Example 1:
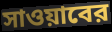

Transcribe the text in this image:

সাওয়াবের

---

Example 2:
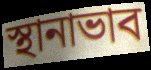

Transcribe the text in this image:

স্থানাভাব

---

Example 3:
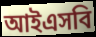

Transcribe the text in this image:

আইএসবি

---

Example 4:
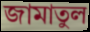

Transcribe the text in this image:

জামাতুল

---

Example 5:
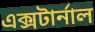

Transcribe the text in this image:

এক্সটার্নাল